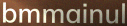
bmmainul